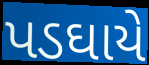
પડઘાયે